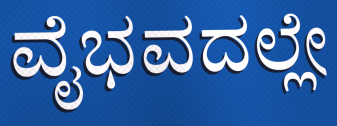
ವೈಭವದಲ್ಲೇ